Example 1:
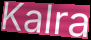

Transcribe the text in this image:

Kalra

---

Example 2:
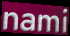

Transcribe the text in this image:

nami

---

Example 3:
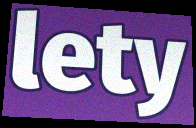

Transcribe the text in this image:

lety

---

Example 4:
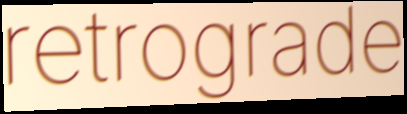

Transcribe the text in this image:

retrograde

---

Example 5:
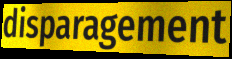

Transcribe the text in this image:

disparagement